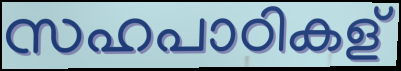
സഹപാഠികള്